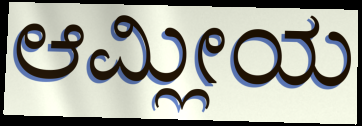
ಆಮ್ಲೀಯ